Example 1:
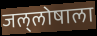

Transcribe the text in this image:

जल्लोषाला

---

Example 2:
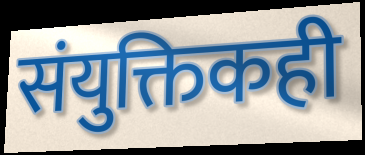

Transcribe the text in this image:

संयुक्तिकही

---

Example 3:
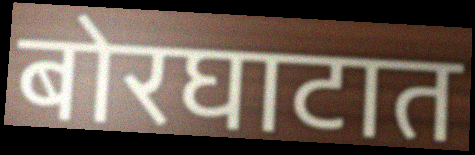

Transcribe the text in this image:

बोरघाटात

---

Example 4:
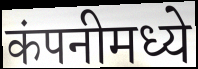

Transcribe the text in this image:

कंपनीमध्ये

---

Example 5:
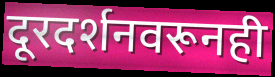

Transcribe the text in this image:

दूरदर्शनवरूनही